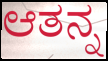
ಆತನ್ನ